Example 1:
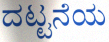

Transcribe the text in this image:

ದಟ್ಟನೆಯ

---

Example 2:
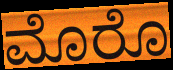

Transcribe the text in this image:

ಮೊರೊ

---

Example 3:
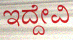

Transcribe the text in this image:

ಇದ್ದೇವಿ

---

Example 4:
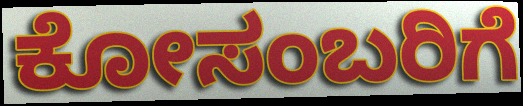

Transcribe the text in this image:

ಕೋಸಂಬರಿಗೆ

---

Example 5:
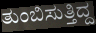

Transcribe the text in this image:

ತುಂಬಿಸುತ್ತಿದ್ದ